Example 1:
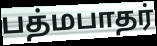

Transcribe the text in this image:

பத்மபாதர்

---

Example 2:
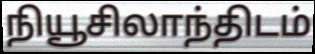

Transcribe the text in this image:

நியூசிலாந்திடம்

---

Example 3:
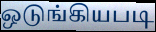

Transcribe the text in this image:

ஒடுங்கியபடி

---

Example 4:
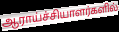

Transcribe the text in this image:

ஆராய்ச்சியாளர்களில்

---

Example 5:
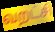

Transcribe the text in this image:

வறட்சி